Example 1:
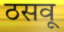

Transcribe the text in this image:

ठसवू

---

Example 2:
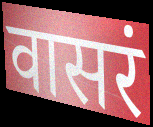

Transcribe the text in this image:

वासरं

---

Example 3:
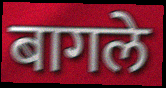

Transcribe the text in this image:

बागले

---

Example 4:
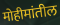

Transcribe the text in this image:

मोहीमांतील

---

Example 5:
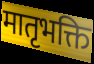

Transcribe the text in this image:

मातृभक्ति